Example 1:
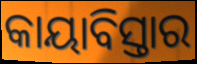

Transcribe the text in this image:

କାୟାବିସ୍ତାର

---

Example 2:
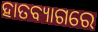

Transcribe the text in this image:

ହାତବ୍ୟାଗରେ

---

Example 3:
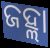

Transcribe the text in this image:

ଜହ୍ଲା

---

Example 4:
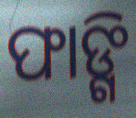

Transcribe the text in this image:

ଫାଙ୍ଗି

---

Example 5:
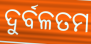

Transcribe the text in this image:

ଦୁର୍ବଳତମ